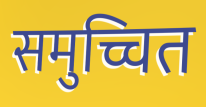
समुच्चित